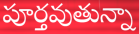
పూర్తవుతున్నా